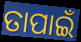
ତାପାଇଁ